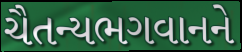
ચૈતન્યભગવાનને